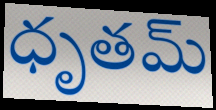
ధృతమ్